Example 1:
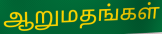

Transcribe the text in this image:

ஆறுமதங்கள்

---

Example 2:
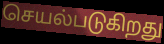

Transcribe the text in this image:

செயல்படுகிறது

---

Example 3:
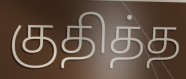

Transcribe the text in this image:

குதித்த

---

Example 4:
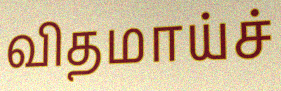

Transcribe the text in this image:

விதமாய்ச்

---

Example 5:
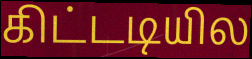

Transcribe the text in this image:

கிட்டடியில